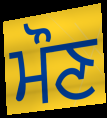
ਮੌਣ